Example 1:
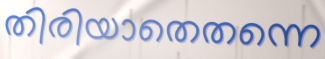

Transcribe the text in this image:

തിരിയാതെതന്നെ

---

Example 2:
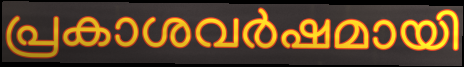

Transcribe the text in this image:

പ്രകാശവർഷമായി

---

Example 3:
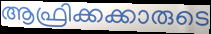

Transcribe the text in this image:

ആഫ്രിക്കക്കാരുടെ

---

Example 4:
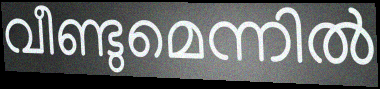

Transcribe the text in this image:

വീണ്ടുമെന്നിൽ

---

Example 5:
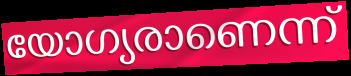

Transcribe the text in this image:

യോഗ്യരാണെന്ന്